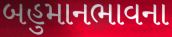
બહુમાનભાવના